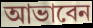
আভাবেন